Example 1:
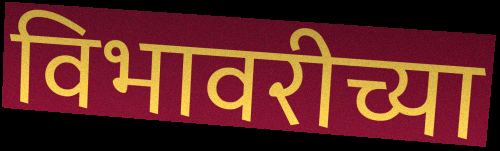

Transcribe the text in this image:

विभावरीच्या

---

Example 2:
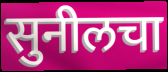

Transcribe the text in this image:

सुनीलचा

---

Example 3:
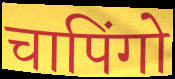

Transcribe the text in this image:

चापिंगो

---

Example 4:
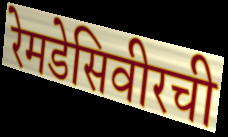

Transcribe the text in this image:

रेमडेसिवीरची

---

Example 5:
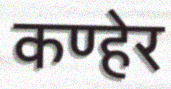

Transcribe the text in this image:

कण्हेर